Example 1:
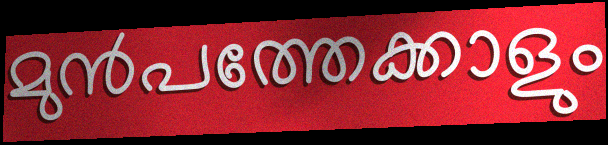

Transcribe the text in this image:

മുൻപത്തേക്കാളും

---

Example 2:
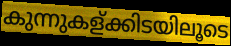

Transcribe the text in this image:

കുന്നുകള്ക്കിടയിലൂടെ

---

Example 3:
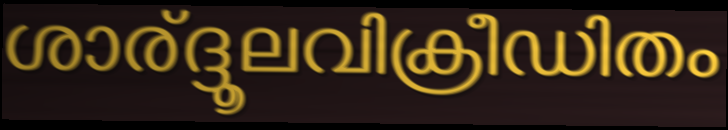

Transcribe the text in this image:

ശാര്ദ്ദൂലവിക്രീഡിതം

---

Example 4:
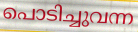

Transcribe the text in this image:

പൊടിച്ചുവന്ന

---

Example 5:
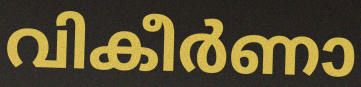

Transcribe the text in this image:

വികീർണാ